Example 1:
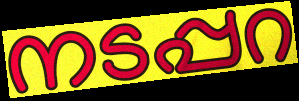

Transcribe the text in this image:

നടപ്പറ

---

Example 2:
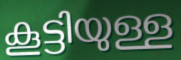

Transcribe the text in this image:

കൂട്ടിയുള്ള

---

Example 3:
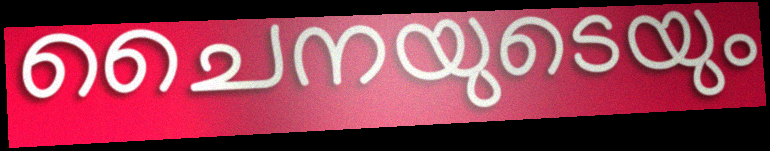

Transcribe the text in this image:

ചൈനയുടെയും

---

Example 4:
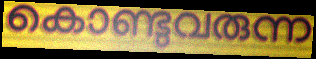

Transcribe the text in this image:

കൊണ്ടുവരുന്ന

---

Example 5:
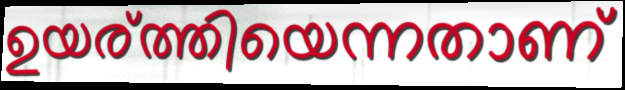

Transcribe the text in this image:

ഉയര്ത്തിയെന്നതാണ്